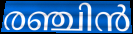
രഞ്ചിൻ